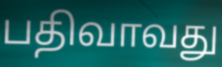
பதிவாவது